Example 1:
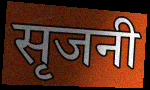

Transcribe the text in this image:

सृजनी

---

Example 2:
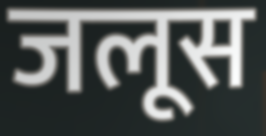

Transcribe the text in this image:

जलूस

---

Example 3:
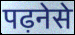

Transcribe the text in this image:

पढ़नेसे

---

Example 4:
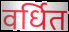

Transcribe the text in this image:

वर्धित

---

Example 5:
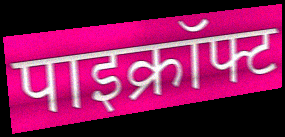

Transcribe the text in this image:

पाइक्रॉफ्ट